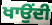
ਖਾਉਂਦੀ